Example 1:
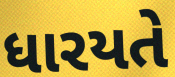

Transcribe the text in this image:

ધારયતે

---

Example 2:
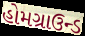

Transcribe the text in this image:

હોમગ્રાઉન્ડ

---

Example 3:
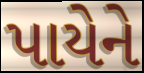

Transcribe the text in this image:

પાયેને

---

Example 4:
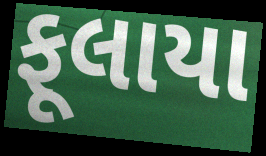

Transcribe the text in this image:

ફૂલાયા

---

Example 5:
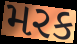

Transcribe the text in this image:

મરક